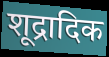
शूद्रादिक